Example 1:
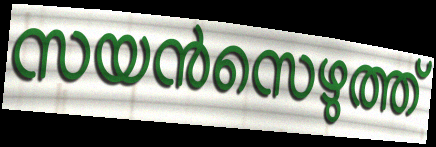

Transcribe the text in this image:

സയൻസെഴുത്ത്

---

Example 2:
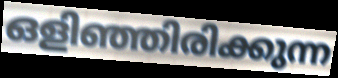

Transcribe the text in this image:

ഒളിഞ്ഞിരിക്കുന്ന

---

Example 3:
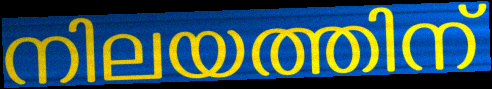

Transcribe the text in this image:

നിലയത്തിന്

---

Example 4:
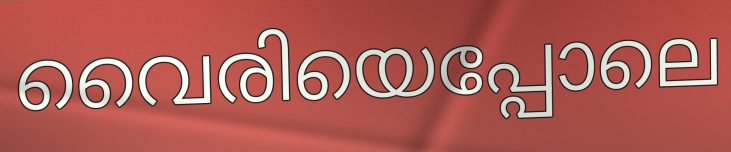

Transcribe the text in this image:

വൈരിയെപ്പോലെ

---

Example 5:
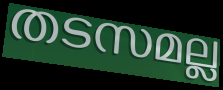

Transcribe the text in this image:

തടസമല്ല